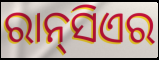
ରାନ୍‌ସିଏର